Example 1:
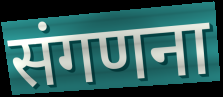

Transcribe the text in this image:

संगणना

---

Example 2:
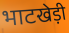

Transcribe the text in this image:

भाटखेड़ी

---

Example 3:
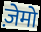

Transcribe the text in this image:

ज़ेमो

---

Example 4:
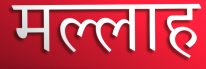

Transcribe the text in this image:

मल्लाह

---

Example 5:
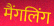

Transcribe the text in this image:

मैंगलिंग